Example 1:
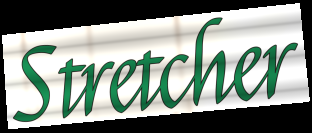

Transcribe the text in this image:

Stretcher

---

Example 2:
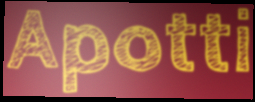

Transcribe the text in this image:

Apotti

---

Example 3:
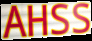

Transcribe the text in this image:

AHSS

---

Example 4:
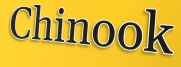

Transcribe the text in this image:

Chinook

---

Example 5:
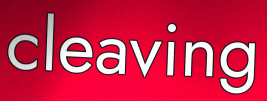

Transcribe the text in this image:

cleaving